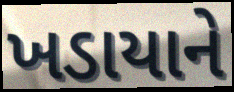
ખડાયાને